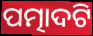
ପତ୍ମାଦଟି